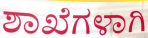
ಶಾಖೆಗಳಾಗಿ